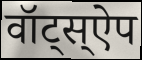
वॉट्स्ऐप